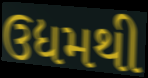
ઉદ્યમથી